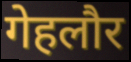
गेहलौर